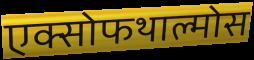
एक्सोफथाल्मोस